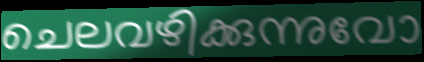
ചെലവഴിക്കുന്നുവോ